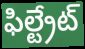
ఫిల్ట్రేట్